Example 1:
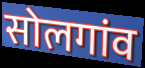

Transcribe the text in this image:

सोलगांव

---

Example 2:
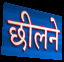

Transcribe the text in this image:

छीलने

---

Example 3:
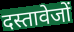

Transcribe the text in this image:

दस्तावेजों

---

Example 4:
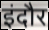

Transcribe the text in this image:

इंदौर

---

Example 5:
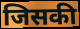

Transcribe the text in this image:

जिसकी